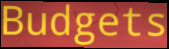
Budgets